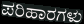
ಪರಿಹಾರಗಳು